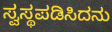
ಸ್ವಸ್ಥಪಡಿಸಿದನು